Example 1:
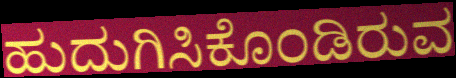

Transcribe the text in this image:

ಹುದುಗಿಸಿಕೊಂಡಿರುವ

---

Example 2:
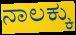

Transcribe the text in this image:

ನಾಲಕ್ಕು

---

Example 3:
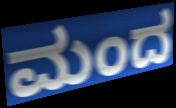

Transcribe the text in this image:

ಮಂದ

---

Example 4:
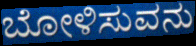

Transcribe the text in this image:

ಬೋಳಿಸುವನು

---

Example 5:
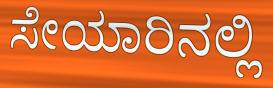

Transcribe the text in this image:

ಸೇಯಾರಿನಲ್ಲಿ